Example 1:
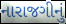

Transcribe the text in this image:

નારાજગીનું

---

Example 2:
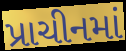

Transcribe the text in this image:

પ્રાચીનમાં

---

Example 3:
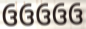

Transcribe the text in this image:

ઉઉઉઉઉ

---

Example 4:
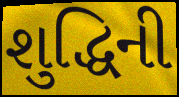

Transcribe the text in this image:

શુદ્ધિની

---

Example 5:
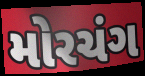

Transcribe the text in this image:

મોરચંગ